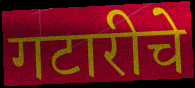
गटारीचे